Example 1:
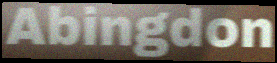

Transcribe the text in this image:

Abingdon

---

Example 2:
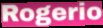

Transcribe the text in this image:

Rogerio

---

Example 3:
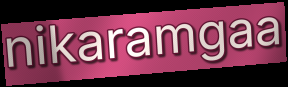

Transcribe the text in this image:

nikaramgaa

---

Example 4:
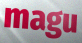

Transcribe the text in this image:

magu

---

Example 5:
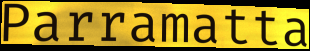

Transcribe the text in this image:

Parramatta